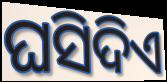
ଘସିଦିଏ